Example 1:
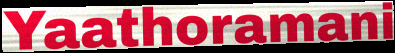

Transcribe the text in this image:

Yaathoramani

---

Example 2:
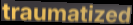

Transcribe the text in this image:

traumatized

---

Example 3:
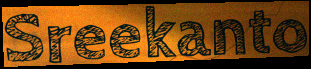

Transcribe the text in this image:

Sreekanto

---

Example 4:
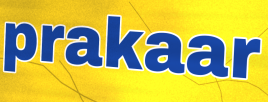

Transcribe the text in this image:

prakaar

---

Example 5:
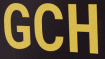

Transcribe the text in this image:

GCH